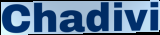
Chadivi